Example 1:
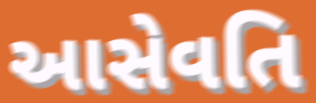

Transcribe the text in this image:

આસેવતિ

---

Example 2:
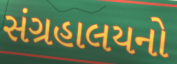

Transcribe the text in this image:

સંગ્રહાલયનો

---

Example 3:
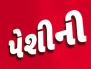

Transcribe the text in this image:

પેશીની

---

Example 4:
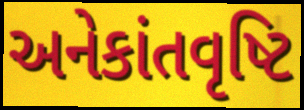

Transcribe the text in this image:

અનેકાંતવૃષ્ટિ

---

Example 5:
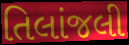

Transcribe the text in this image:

તિલાંજલી